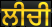
ਲੀਚੀ